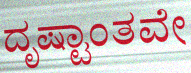
ದೃಷ್ಟಾಂತವೇ